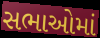
સભાઓમાં